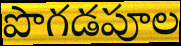
పొగడపూల